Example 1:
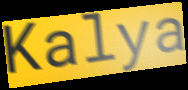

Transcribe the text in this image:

Kalya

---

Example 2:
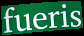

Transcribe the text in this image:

fueris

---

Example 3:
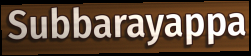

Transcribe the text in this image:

Subbarayappa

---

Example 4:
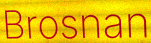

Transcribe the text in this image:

Brosnan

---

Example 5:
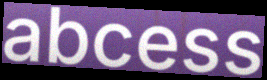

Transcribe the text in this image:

abcess